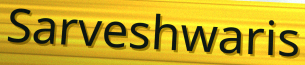
Sarveshwaris